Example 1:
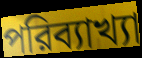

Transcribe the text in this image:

পরিব্যাখ্যা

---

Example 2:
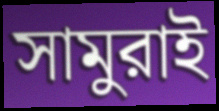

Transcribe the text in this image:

সামুরাই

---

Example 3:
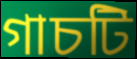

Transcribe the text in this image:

গাচটি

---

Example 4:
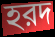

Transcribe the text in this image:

হরদ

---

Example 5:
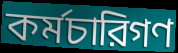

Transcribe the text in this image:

কর্মচারিগণ